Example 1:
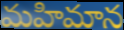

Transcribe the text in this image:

మహిమాన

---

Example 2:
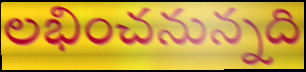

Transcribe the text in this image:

లభించనున్నది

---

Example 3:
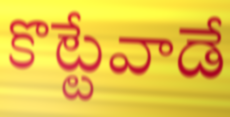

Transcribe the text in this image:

కొట్టేవాడే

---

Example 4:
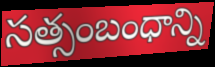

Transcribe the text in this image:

సత్సంబంధాన్ని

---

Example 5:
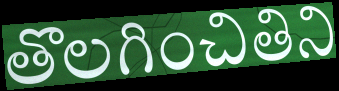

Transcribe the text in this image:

తొలగించితిని